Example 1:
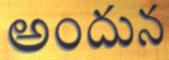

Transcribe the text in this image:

అందున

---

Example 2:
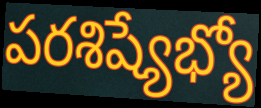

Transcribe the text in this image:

పరశిష్యేభ్యో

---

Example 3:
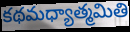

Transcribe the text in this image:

కథమధ్యాత్మమితి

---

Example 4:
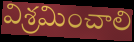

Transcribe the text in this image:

విశ్రమించాలి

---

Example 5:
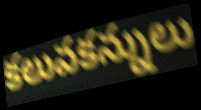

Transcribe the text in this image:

కలువకన్నులు